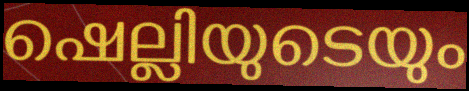
ഷെല്ലിയുടെയും